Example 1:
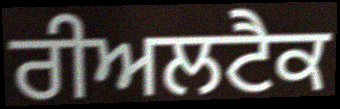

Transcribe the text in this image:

ਰੀਅਲਟੈਕ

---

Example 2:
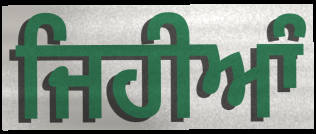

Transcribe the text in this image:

ਜਿਹੀਆੰ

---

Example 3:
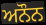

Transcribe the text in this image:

ਅਨੌਨ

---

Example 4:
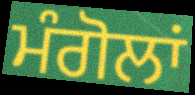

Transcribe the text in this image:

ਮੰਗੋਲਾਂ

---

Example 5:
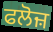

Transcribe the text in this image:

ਫਲੋਜ਼